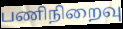
பணிநிறைவு